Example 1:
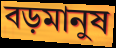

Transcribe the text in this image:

বড়মানুষ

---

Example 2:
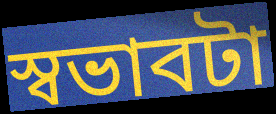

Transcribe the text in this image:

স্বভাবটা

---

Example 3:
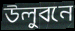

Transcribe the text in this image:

উলুবনে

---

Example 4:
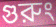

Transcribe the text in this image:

গুরুং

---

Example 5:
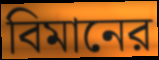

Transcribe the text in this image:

বিমানের